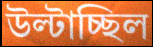
উল্টাচ্ছিল